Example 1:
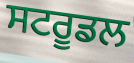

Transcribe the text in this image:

ਸਟਰੂਡਲ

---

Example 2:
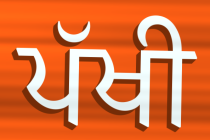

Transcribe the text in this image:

ਪੱਖੀ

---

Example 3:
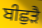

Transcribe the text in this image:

ਬੀਛੁੜੈ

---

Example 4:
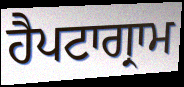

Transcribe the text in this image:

ਹੈਪਟਾਗ੍ਰਾਮ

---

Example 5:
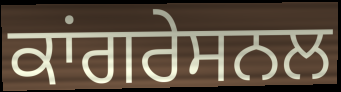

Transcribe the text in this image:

ਕਾਂਗਰੇਸਨਲ